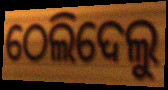
ଠେଲିଦେଲୁ